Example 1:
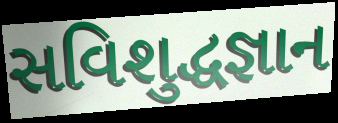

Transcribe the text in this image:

સવિશુદ્ધજ્ઞાન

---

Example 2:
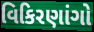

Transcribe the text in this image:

વિકિરણાંગો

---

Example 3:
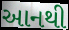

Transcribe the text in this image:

આનથી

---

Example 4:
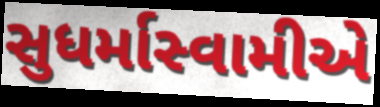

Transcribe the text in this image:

સુધર્માસ્વામીએ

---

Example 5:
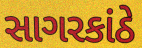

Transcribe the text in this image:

સાગરકાંઠે